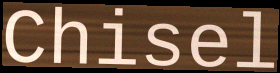
Chisel